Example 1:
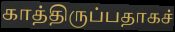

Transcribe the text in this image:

காத்திருப்பதாகச்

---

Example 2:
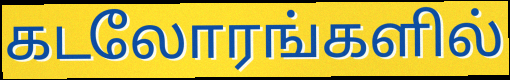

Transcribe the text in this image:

கடலோரங்களில்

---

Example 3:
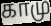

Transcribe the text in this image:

காமு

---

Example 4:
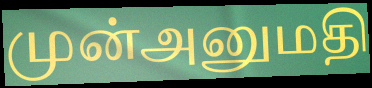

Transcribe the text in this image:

முன்அனுமதி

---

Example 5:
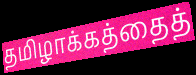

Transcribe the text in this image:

தமிழாக்கத்தைத்